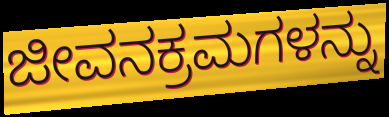
ಜೀವನಕ್ರಮಗಳನ್ನು